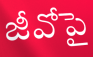
జీవోపై